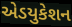
એડયુકેશન